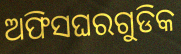
ଅଫିସଘରଗୁଡିକ